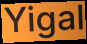
Yigal